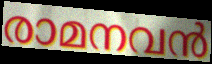
രാമനവൻ